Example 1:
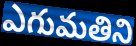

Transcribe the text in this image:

ఎగుమతిని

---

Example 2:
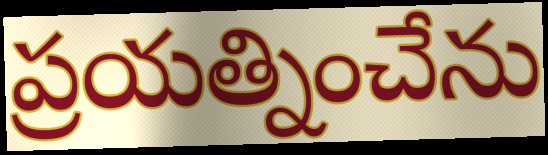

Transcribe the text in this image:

ప్రయత్నించేను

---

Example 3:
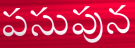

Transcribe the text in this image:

పసుపున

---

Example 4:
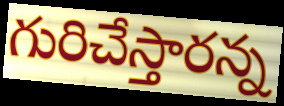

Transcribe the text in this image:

గురిచేస్తారన్న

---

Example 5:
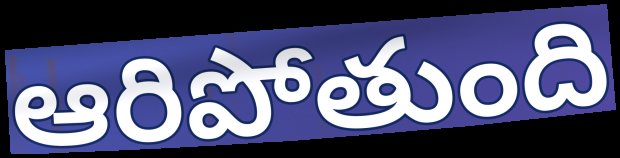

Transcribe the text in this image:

ఆరిపోతుంది